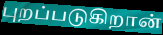
புறப்படுகிறான்